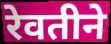
रेवतीने